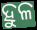
ହୁଳ